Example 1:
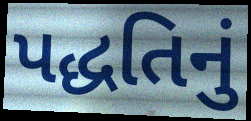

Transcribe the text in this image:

પદ્ધતિનું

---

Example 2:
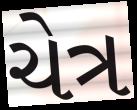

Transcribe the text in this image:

ચેત્ર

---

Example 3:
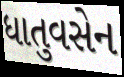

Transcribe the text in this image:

ધાતુવસેન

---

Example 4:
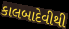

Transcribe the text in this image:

કાલબાદેવીથી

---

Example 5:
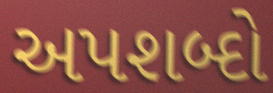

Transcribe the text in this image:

અપશબ્દો